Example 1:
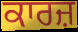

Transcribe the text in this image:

ਕਾਰਜ਼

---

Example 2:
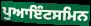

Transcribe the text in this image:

ਪੁਆਇੰਟਸਮਿਨ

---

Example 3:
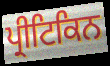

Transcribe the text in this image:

ਪ੍ਰੀਟਿਕਿਨ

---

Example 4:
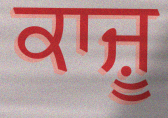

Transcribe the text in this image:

ਕਾਜ਼ੂ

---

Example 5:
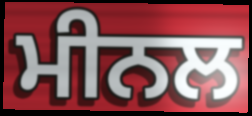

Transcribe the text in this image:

ਮੀਨਲ